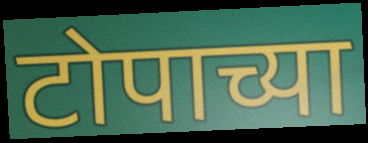
टोपाच्या